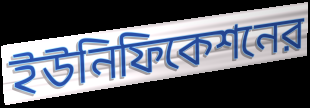
ইউনিফিকেশনের